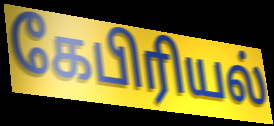
கேபிரியல்